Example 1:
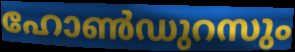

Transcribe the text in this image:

ഹോൺഡുറസും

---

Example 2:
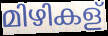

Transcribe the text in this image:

മിഴികള്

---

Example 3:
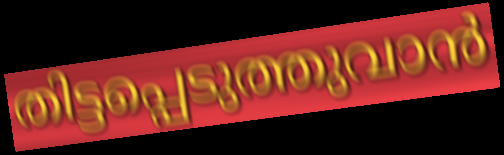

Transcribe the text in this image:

തിട്ടപ്പെടുത്തുവാൻ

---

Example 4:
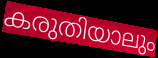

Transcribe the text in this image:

കരുതിയാലും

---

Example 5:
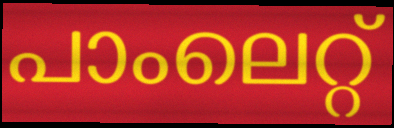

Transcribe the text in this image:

പാംലെറ്റ്